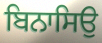
ਬਿਨਾਸਿਉ